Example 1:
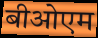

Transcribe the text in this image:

बीओएम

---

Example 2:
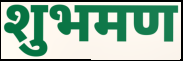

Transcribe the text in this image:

शुभमण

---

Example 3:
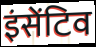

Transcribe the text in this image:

इंसेंटिव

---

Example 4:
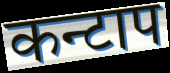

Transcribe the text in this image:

कन्टाप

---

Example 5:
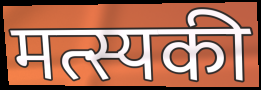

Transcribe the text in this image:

मत्स्यकी